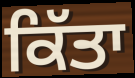
ਕਿੱਤਾ